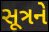
સૂત્રને